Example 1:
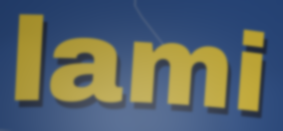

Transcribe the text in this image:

lami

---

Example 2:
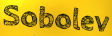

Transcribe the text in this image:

Sobolev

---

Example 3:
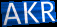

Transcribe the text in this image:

AKR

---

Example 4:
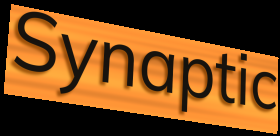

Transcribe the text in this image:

Synaptic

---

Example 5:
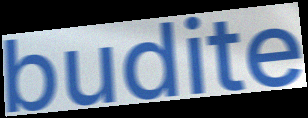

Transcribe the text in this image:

budite